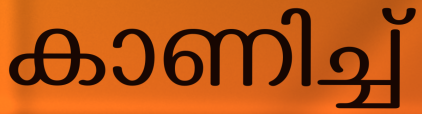
കാണിച്ച്